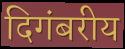
दिगंबरीय